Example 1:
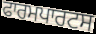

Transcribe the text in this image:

ਫਾਰਮਪਾਰਟਸ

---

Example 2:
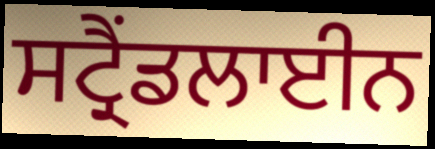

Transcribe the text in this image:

ਸਟ੍ਰੈਂਡਲਾਈਨ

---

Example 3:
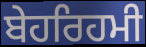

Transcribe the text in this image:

ਬੇਹਰਿਹਮੀ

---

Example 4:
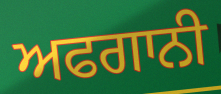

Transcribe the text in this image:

ਅਫਗਾਨੀ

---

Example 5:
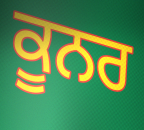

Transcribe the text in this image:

ਕੂਨਰ